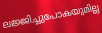
ലജ്ജിച്ചുപോകയുമില്ല